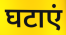
घटाएं